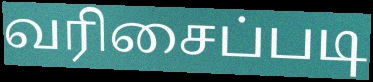
வரிசைப்படி